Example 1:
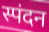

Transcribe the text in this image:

स्पंदन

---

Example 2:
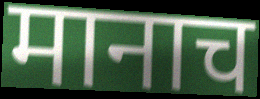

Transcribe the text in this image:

मानाच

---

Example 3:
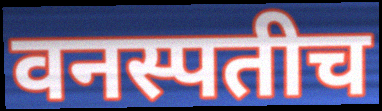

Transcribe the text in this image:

वनस्पतीच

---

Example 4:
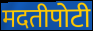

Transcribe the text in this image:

मदतीपोटी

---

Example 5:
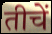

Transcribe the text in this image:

तीचें